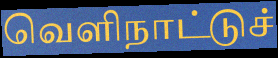
வெளிநாட்டுச்